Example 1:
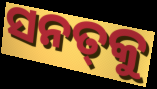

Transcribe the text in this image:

ସନତ୍‍କୁ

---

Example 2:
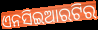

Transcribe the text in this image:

ଏନସିଇଆରଟିର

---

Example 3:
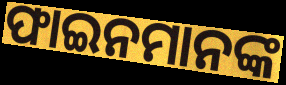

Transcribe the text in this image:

ଫାଇନମାନଙ୍କ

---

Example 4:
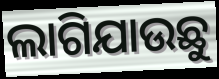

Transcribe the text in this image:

ଲାଗିଯାଉଛୁ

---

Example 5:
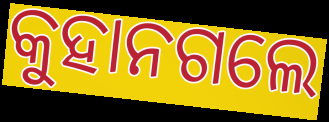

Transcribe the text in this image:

କୁହାନଗଲେ